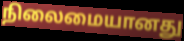
நிலைமையானது